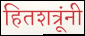
हितशत्रूंनी